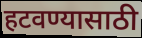
हटवण्यासाठी